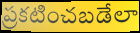
ప్రకటించబడేలా